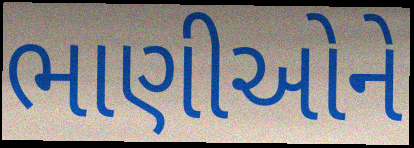
ભાણીઓને